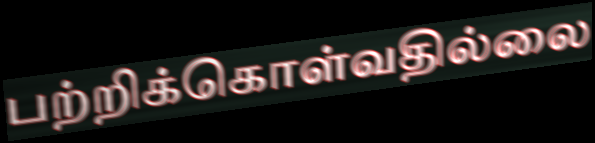
பற்றிக்கொள்வதில்லை